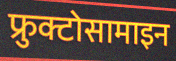
फ्रुक्टोसामाइन